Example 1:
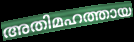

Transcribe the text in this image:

അതിമഹത്തായ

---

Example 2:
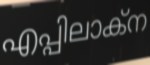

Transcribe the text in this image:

എപ്പിലാക്ന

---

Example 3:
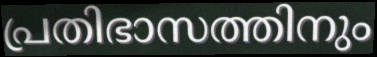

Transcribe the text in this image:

പ്രതിഭാസത്തിനും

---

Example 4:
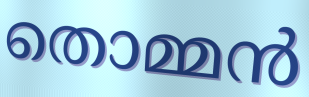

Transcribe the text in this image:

തൊമ്മൻ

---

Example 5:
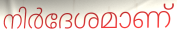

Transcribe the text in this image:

നിർദേശമാണ്